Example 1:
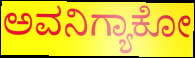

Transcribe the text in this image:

ಅವನಿಗ್ಯಾಕೋ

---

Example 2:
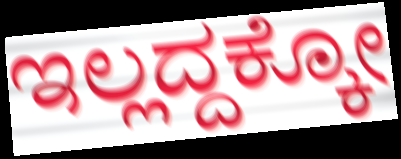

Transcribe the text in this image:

ಇಲ್ಲದ್ದಕ್ಕೋ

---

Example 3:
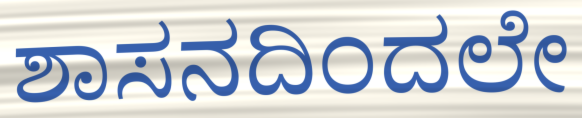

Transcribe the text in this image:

ಶಾಸನದಿಂದಲೇ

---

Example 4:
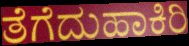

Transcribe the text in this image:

ತೆಗೆದುಹಾಕಿರಿ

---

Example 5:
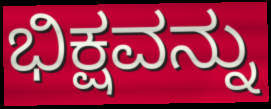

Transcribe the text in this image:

ಭಿಕ್ಷವನ್ನು